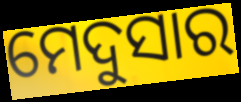
ମେଦୁସାର